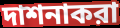
দাশনাকরা